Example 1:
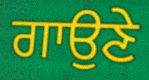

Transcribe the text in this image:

ਗਾਉਣੇ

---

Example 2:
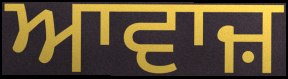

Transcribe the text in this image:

ਆਵਾਜ਼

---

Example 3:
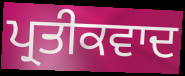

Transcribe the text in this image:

ਪ੍ਰਤੀਕਵਾਦ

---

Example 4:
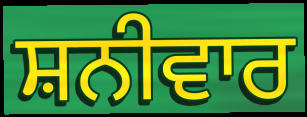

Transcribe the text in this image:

ਸ਼ਨੀਵਾਰ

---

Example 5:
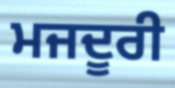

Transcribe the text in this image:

ਮਜਦੂਰੀ